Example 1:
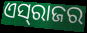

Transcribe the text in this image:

ଏସ୍‍ରାଜର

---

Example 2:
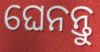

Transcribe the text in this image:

ଘେନନ୍ତୁ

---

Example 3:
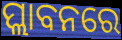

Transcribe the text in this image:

ପ୍ଲାବନରେ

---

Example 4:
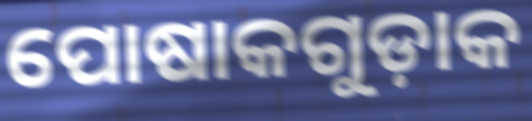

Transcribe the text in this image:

ପୋଷାକଗୁଡ଼ାକ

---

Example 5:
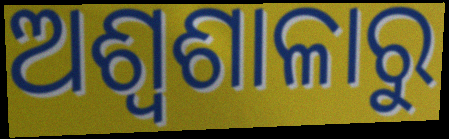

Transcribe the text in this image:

ଅଶ୍ୱଶାଳାରୁ